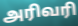
அரிவரி